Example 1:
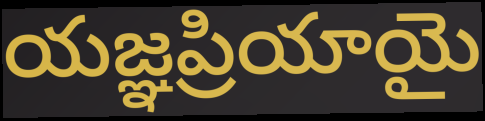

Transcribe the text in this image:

యజ్ఞప్రియాయై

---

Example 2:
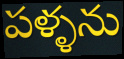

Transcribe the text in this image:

పళ్ళను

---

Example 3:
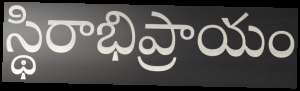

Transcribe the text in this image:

స్థిరాభిప్రాయం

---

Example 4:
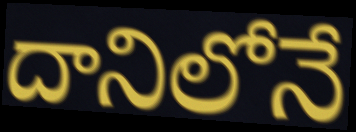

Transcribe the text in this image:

దానిలోనే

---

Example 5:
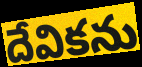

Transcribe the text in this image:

దేవికను